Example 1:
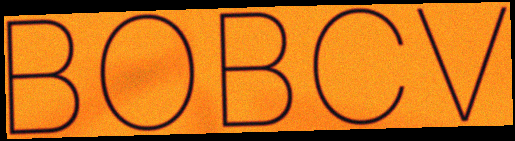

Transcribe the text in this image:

BOBCV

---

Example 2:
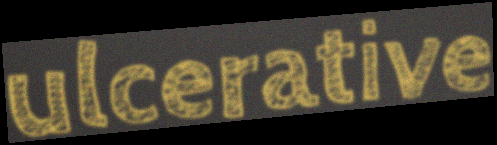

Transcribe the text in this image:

ulcerative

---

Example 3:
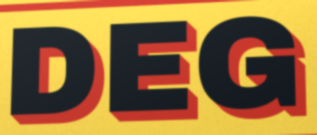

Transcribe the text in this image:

DEG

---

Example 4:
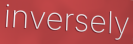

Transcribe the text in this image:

inversely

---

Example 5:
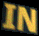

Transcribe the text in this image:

IN